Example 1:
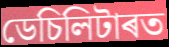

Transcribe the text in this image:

ডেচিলিটাৰত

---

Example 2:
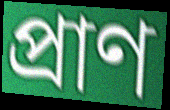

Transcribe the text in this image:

প্ৰাণ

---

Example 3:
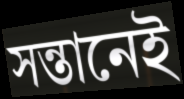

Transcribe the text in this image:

সন্তানেই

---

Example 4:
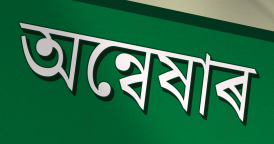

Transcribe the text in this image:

অন্বেষাৰ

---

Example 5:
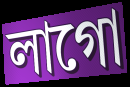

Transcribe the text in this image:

লাগো